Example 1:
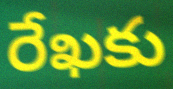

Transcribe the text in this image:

రేఖకు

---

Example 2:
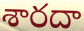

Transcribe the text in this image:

శారదా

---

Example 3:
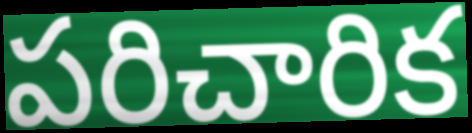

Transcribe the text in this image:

పరిచారిక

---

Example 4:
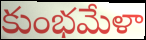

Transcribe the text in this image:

కుంభమేళా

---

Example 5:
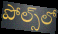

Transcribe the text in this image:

పోల్స్‌లో